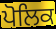
ਪੋਲਿਕ